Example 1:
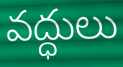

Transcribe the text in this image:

వద్ధులు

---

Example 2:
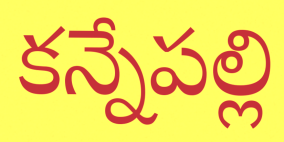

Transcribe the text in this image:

కన్నేపల్లి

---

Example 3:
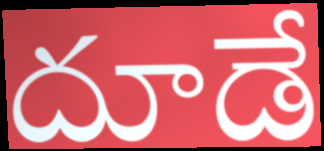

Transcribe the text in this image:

దూడే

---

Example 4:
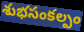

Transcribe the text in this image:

శుభసంకల్పం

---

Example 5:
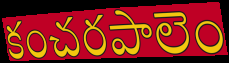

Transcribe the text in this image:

కంచరపాలెం